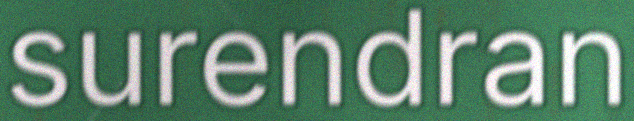
surendran